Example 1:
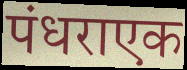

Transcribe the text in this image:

पंधराएक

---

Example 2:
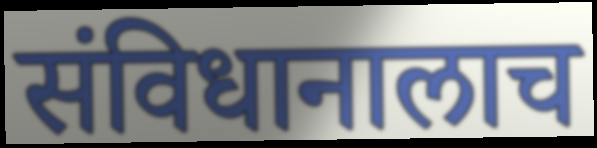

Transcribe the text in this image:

संविधानालाच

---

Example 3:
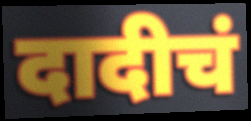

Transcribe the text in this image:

दादीचं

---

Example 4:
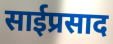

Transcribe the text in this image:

साईप्रसाद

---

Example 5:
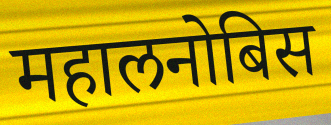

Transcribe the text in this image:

महालनोबिस